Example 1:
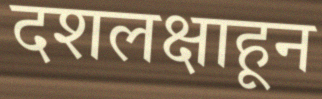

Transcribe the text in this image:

दशलक्षाहून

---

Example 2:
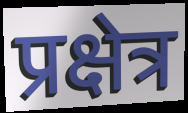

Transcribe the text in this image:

प्रक्षेत्र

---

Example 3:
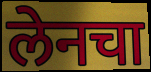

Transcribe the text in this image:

लेनचा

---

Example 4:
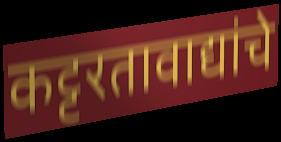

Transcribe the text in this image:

कट्टरतावाद्यांचे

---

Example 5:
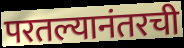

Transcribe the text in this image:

परतल्यानंतरची